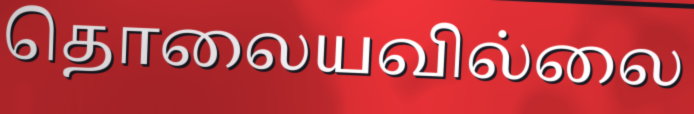
தொலையவில்லை